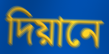
দিয়ানে